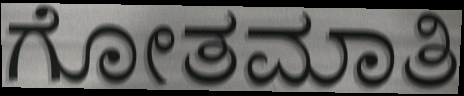
ಗೋತಮಾತಿ